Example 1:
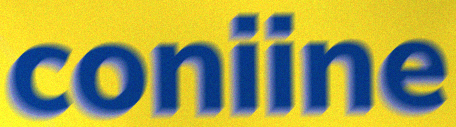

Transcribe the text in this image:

coniine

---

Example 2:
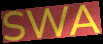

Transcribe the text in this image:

SWA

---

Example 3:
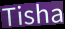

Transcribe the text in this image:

Tisha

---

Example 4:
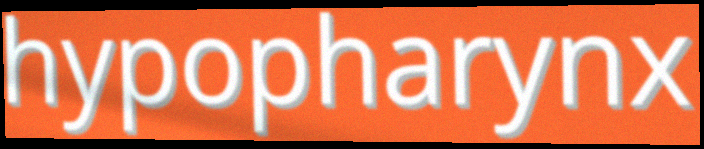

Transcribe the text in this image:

hypopharynx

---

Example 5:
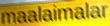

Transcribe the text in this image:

maalaimalar